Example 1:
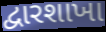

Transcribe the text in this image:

દ્વારશાખા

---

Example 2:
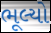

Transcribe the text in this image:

ભૂલ્‍યો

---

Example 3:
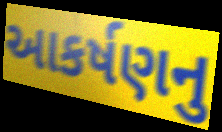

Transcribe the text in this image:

આકર્ષણનુ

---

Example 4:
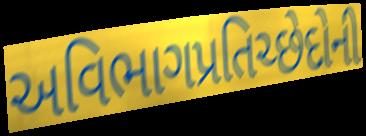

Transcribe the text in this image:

અવિભાગપ્રતિચ્છેદોની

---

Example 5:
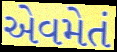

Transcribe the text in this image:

એવમેતં